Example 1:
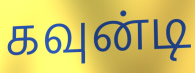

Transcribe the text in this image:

கவுன்டி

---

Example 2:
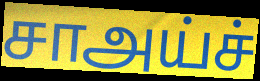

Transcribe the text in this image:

சாஅய்ச்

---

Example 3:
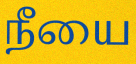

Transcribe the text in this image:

நீயை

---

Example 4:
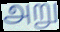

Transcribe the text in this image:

அறு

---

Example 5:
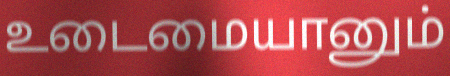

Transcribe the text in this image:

உடைமையானும்